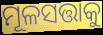
ମୂଳସତ୍ତାକୁ